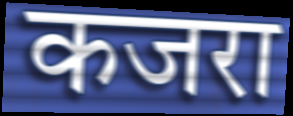
कजरा